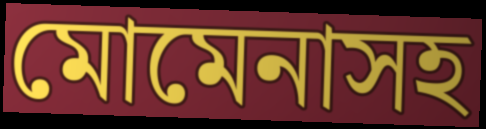
মোমেনাসহ